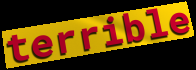
terrible